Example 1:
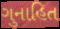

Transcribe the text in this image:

ગુનાહિત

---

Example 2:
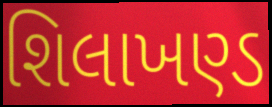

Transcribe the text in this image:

શિલાખણ્ડ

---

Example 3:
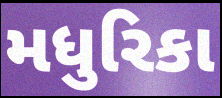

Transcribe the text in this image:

મધુરિકા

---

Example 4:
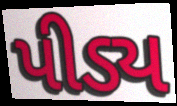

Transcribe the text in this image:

પીડ્ય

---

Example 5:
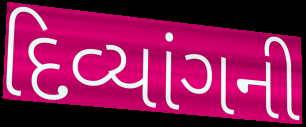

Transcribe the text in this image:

દિવ્યાંગની